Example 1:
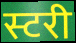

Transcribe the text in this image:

स्टरी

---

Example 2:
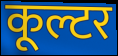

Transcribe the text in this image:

कूल्टर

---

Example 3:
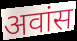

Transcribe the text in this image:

अवांस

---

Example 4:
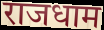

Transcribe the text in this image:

राजधाम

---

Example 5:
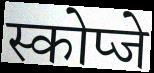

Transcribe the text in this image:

स्कोप्जे